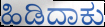
ಹಿಡಿದಾಕು